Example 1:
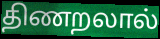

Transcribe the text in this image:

திணறலால்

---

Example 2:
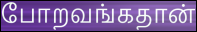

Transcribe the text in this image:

போறவங்கதான்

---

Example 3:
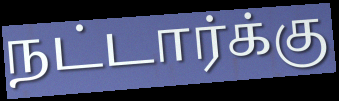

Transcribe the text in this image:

நட்டார்க்கு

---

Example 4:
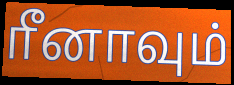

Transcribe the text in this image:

ரீனாவும்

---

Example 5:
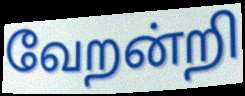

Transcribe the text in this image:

வேறன்றி